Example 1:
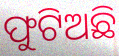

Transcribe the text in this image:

ଫୁଟିଅଛି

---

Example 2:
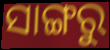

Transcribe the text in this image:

ସାଙ୍ଗରୁ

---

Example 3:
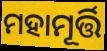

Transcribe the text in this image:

ମହାମୂର୍ତ୍ତି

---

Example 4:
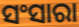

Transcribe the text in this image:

ସଂସାରା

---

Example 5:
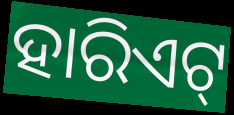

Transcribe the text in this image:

ହାରିଏଟ୍